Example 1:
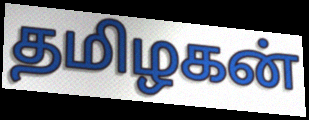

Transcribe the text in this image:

தமிழகன்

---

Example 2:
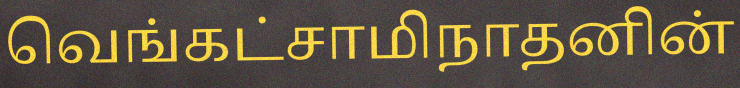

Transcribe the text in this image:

வெங்கட்சாமிநாதனின்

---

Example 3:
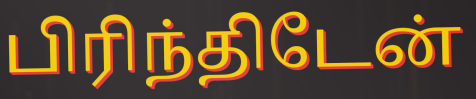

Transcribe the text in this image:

பிரிந்திடேன்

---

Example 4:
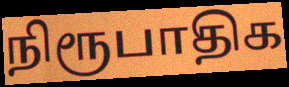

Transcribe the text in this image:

நிரூபாதிக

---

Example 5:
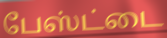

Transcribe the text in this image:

பேஸ்ட்டை